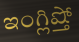
ఇంగ్లిష్తో